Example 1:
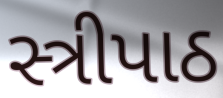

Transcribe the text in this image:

સ્ત્રીપાઠ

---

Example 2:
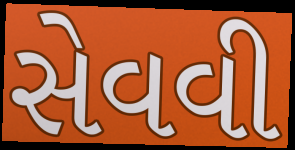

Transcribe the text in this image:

સેવવી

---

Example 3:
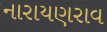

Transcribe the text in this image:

નારાયણરાવ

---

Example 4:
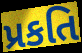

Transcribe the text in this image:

પ્રકતિ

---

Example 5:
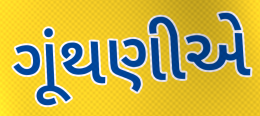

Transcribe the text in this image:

ગૂંથણીએ